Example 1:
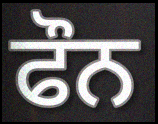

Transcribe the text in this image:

ਫੌਨ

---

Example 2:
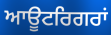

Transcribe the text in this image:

ਆਊਟਰਿਗਰਾਂ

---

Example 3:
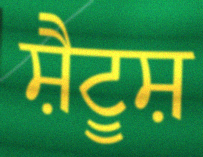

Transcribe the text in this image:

ਸ਼ੈਟੂਸ਼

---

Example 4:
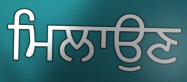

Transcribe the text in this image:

ਮਿਲਾਉਣ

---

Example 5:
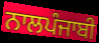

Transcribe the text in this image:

ਨਾਲਪੰਜਾਬੀ